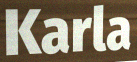
Karla